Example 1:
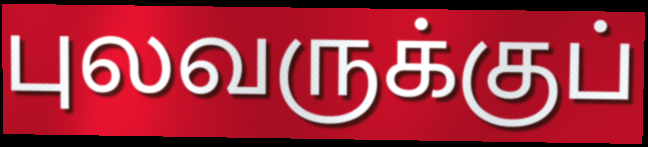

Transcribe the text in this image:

புலவருக்குப்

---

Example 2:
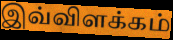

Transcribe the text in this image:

இவ்விளக்கம்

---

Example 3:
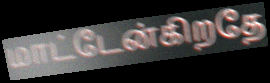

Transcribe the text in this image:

மாட்டேன்கிறதே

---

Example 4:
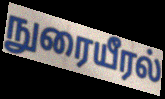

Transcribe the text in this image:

நுரையீரல்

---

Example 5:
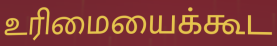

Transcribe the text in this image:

உரிமையைக்கூட